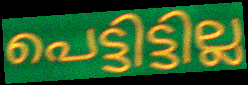
പെട്ടിട്ടില്ല